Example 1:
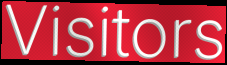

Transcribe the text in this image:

Visitors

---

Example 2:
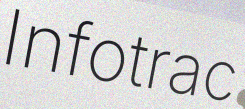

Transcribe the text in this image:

Infotrac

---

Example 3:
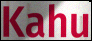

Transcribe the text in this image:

Kahu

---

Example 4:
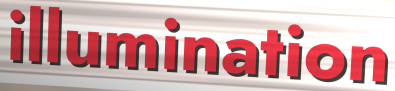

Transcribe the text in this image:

illumination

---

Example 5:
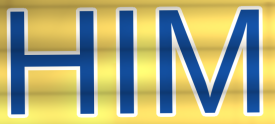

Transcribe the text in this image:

HIM